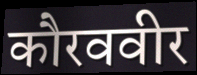
कौरववीर